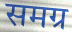
समग्र